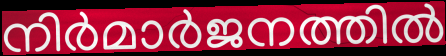
നിർമാർജനത്തിൽ